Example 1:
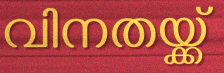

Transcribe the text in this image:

വിനതയ്ക്ക്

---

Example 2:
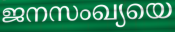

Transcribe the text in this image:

ജനസംഖ്യയെ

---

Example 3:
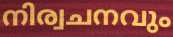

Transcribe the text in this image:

നിര്വചനവും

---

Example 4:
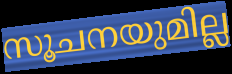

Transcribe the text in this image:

സൂചനയുമില്ല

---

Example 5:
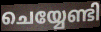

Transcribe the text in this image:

ചെയ്യേണ്ടി